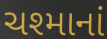
ચશ્માનાં